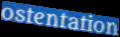
ostentation